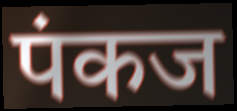
पंकज